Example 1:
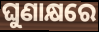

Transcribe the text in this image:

ଘୁଣାକ୍ଷରେ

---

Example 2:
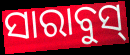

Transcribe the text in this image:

ସାରାବୁସ୍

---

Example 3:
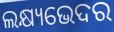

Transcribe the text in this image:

ଲକ୍ଷ୍ୟଭେଦର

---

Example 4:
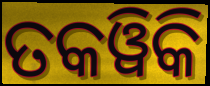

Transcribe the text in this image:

ତକୱିକି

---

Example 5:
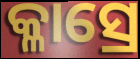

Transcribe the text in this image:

କ୍ଳାସ୍ରେ